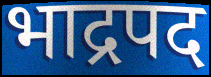
भाद्रपद